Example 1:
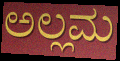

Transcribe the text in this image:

ಅಲ್ಲಮ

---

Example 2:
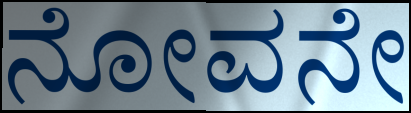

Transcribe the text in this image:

ನೋವನೇ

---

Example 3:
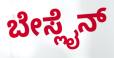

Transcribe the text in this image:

ಬೇಸ್ಲೈನ್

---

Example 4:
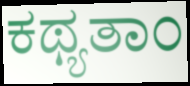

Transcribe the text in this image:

ಕಥ್ಯತಾಂ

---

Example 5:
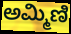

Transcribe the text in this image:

ಅಮ್ಮಿಣಿ